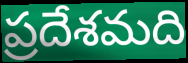
ప్రదేశమది